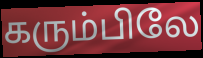
கரும்பிலே